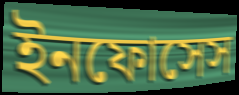
ইনফোসেস